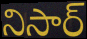
నిసార్